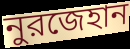
নুরজেহান